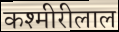
कश्मीरीलाल